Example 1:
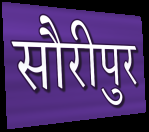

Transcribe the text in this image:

सौरीपुर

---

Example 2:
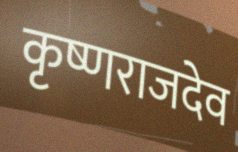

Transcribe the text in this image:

कृष्णराजदेव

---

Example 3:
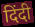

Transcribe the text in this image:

दिंदी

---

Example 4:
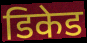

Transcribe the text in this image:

डिकेड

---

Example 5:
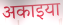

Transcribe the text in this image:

अकाइया